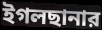
ইগলছানার